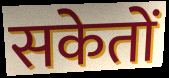
सकेतों